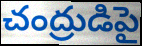
చంద్రుడిపై